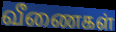
வீணைகள்